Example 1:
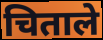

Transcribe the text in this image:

चिताले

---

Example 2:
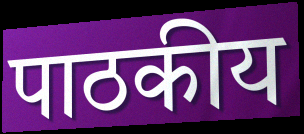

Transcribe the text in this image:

पाठकीय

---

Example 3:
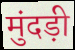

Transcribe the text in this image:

मुंदड़ी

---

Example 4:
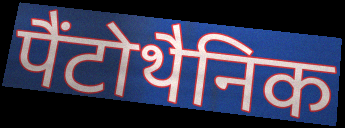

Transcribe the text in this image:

पैंटोथैनिक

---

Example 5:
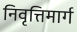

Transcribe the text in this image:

निवृत्तिमार्ग